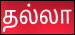
தல்லா